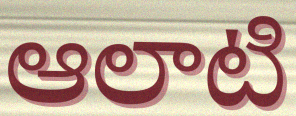
ఆలాటి